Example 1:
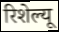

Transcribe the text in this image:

रिशेल्यू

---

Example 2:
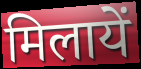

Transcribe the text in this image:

मिलायें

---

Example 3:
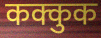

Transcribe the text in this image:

कक्कुक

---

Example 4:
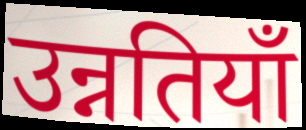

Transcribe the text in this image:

उन्नतियाँ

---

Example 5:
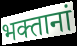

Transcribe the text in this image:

भक्तानां